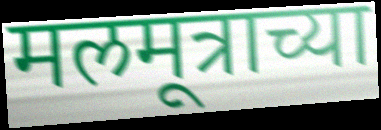
मलमूत्राच्या